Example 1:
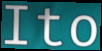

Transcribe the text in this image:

Ito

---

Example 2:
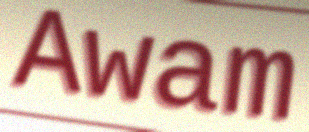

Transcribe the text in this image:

Awam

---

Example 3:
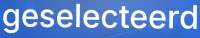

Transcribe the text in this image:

geselecteerd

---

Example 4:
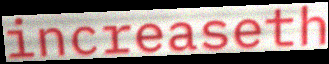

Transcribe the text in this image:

increaseth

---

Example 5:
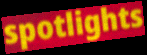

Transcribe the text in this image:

spotlights